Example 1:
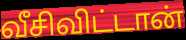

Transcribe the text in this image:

வீசிவிட்டான்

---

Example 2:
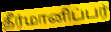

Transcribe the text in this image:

தீர்மானிப்பர்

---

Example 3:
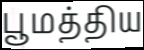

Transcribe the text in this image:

பூமத்திய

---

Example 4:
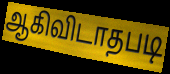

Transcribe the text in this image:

ஆகிவிடாதபடி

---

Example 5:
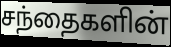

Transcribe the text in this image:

சந்தைகளின்